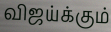
விஜய்க்கும்